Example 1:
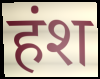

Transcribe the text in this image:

हंश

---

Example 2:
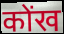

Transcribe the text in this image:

कोंख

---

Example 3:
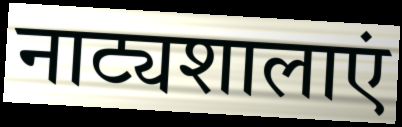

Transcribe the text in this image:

नाट्यशालाएं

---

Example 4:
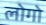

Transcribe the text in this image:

लोगो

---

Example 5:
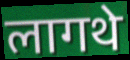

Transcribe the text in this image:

लागथे